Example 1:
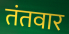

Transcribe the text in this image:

तंतवार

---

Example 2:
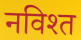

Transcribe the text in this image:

नविश्त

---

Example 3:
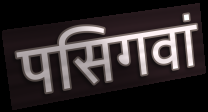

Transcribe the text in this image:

पसिगवां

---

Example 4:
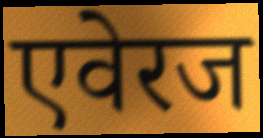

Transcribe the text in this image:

एवेरज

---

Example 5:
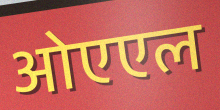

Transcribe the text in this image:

ओएएल